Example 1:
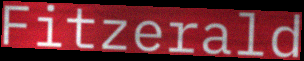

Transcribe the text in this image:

Fitzerald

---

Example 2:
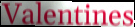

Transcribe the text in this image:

Valentines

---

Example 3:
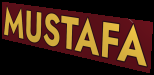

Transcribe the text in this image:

MUSTAFA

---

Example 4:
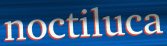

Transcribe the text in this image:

noctiluca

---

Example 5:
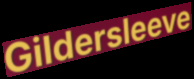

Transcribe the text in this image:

Gildersleeve